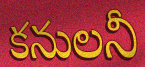
కనులనీ